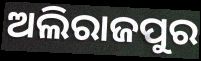
ଅଲିରାଜପୁର